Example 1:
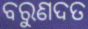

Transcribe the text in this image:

ବରୁଣଦତ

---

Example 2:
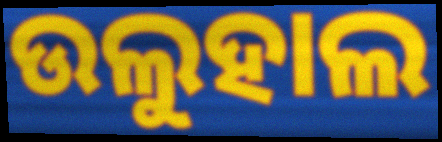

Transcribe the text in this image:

ଉଲୁହାଲ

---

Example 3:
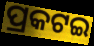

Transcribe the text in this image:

ପ୍ରକଟଇ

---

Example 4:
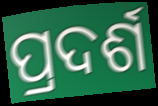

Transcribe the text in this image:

ପ୍ରଦର୍ଶ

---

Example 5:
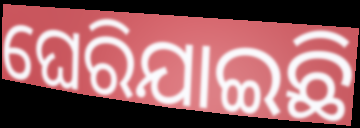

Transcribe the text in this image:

ଘେରିଯାଇଛି